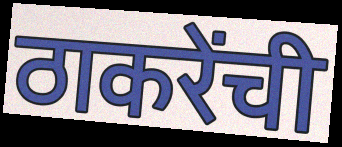
ठाकरेंची